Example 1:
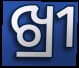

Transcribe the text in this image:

ଖ୍ରୀ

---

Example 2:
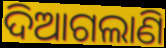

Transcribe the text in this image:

ଦିଆଗଲାଣି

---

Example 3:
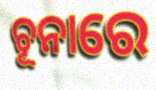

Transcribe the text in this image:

ଚୂନାରେ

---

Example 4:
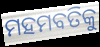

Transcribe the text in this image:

ମହମବତିକୁ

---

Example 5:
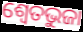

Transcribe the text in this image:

ଶ୍ଵେତଭୁଜା